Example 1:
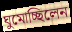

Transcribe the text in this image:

ঘুমোচ্ছিলেন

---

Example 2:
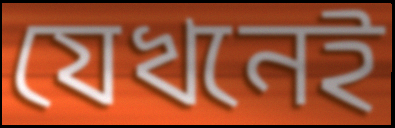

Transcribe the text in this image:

যেখনেই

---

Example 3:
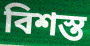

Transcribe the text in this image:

বিশস্ত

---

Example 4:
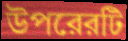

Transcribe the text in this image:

উপরেরটি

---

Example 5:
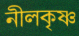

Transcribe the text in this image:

নীলকৃষ্ণ